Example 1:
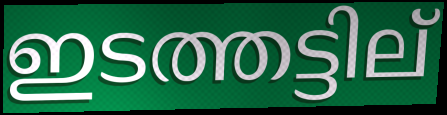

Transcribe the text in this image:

ഇടത്തട്ടില്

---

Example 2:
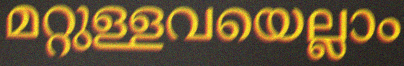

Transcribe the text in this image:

മറ്റുള്ളവയെല്ലാം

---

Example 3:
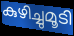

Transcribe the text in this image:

കുഴിച്ചുമൂടി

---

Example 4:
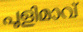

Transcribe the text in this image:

പുളിമാവ്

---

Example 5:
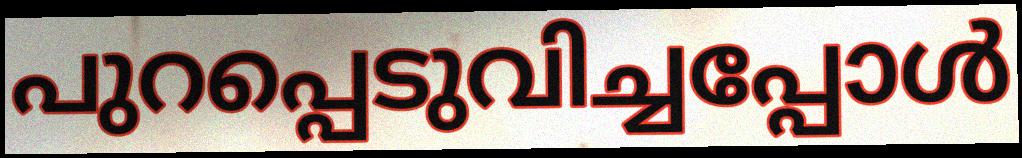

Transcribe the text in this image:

പുറപ്പെടുവിച്ചപ്പോൾ